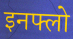
इनफ्लो